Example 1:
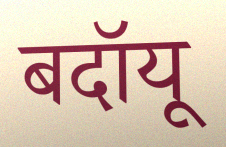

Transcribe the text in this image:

बदॉयू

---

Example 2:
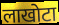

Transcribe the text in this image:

लाखोटा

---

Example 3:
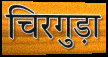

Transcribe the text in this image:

चिरगुड़ा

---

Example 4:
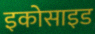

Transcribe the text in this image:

इकोसाइड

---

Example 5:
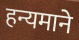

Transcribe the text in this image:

हन्यमाने